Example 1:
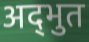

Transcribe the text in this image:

अद्‌भुत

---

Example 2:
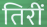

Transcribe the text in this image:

तिरीं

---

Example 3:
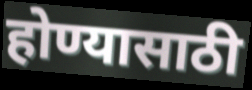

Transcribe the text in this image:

होण्यासाठी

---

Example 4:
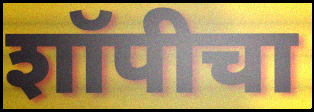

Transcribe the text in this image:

शॉपीचा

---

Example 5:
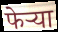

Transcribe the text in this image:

फेर्‍या